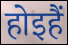
होइहैं